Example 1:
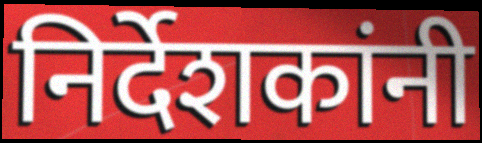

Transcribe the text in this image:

निर्देशकांनी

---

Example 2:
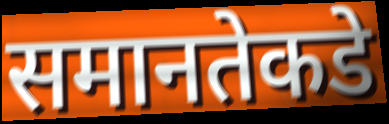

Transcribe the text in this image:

समानतेकडे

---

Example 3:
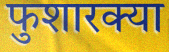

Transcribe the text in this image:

फुशारक्‍या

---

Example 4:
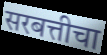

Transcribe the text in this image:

सरबत्तीचा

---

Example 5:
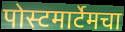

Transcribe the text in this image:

पोस्टमार्टेमचा